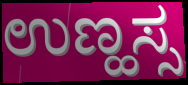
ಉಣ್ಹಸ್ಸ